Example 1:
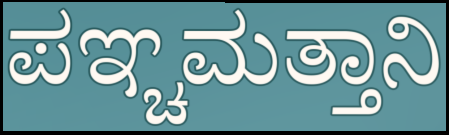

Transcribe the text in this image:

ಪಞ್ಚಮತ್ತಾನಿ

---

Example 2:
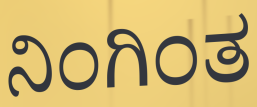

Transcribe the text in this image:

ನಿಂಗಿಂತ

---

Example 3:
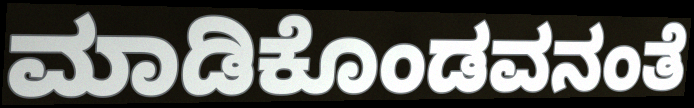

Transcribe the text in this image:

ಮಾಡಿಕೊಂಡವನಂತೆ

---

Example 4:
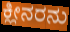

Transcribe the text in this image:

ಕ್ಲೀನರನು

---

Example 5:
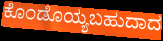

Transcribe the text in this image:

ಕೊಂಡೊಯ್ಯಬಹುದಾದ